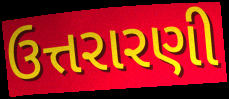
ઉત્તરારણી